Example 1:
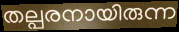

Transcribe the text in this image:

തല്പരനായിരുന്ന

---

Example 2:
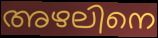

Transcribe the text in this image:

അഴലിനെ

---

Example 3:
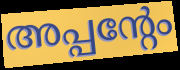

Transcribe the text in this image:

അപ്പന്റേം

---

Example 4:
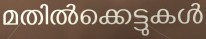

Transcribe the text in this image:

മതിൽക്കെട്ടുകൾ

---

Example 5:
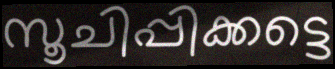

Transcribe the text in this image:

സൂചിപ്പിക്കട്ടെ